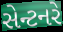
સેન્ટનરે